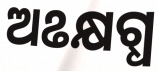
ଅଌକ୍ଷଗ୍ଧ